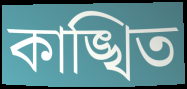
কাঙ্খিত